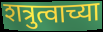
शत्रुत्वाच्या